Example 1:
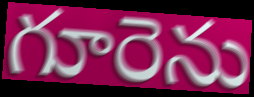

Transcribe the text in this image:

గూరెను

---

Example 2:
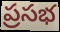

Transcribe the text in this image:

ప్రసభ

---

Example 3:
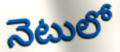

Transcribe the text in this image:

నెటులో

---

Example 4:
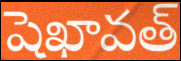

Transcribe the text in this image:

షెఖావత్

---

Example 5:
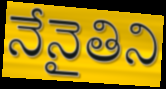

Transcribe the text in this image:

నేనైతిని